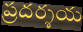
ప్రదర్శయ